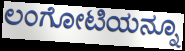
ಲಂಗೋಟಿಯನ್ನೂ